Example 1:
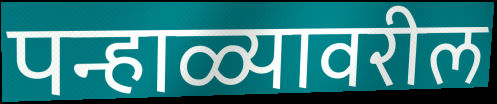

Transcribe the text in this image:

पन्हाळ्यावरील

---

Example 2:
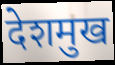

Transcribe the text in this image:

देशमुख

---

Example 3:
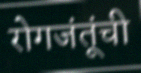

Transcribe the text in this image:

रोगजंतूंची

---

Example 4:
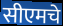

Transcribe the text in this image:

सीएमचे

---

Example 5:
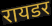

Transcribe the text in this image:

रायडर